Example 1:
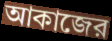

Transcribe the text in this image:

আকাজের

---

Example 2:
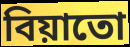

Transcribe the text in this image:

বিয়াতো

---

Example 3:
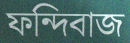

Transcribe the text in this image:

ফন্দিবাজ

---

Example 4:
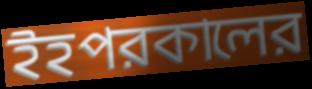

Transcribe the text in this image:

ইহপরকালের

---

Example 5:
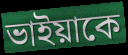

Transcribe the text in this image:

ভাইয়াকে